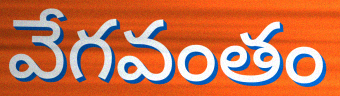
వేగవంతం